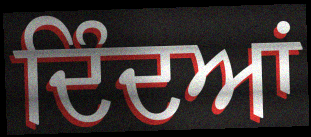
ਦਿੰਦਆਂ